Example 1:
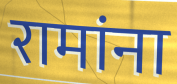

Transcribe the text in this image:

रामांना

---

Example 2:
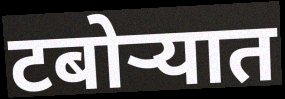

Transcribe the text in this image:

टबोऱ्यात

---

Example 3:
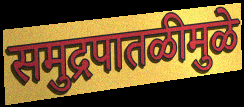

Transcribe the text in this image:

समुद्रपातळीमुळे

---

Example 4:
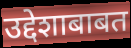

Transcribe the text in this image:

उद्देशाबाबत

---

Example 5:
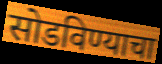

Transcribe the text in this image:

सोडविण्याचा